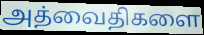
அத்வைதிகளை